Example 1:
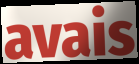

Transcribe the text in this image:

avais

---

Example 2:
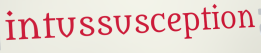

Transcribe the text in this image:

intussusception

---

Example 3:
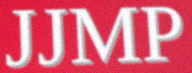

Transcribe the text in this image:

JJMP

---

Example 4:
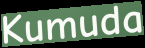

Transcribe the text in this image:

Kumuda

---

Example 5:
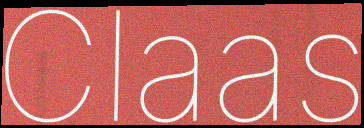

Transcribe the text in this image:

Claas